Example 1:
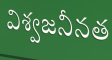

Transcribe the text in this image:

విశ్వజనీనత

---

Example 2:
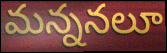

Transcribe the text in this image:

మన్ననలూ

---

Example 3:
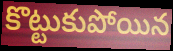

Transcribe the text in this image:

కొట్టుకుపోయిన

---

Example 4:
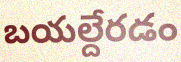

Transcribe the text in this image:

బయల్దేరడం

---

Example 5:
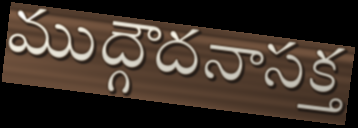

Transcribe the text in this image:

ముద్గౌదనాసక్త